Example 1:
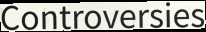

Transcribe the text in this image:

Controversies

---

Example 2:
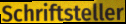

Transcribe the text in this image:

Schriftsteller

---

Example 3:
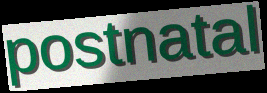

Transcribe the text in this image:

postnatal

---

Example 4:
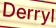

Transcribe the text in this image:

Derryl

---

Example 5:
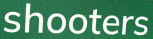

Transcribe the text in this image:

shooters